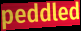
peddled